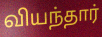
வியந்தார்